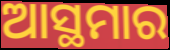
ଆସ୍ଥମାର